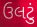
ઉલટું